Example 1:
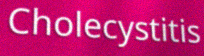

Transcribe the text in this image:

Cholecystitis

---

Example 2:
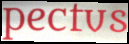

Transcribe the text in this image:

pectus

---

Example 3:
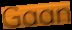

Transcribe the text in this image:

Gaan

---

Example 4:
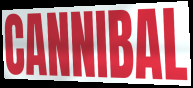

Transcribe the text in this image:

CANNIBAL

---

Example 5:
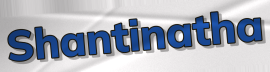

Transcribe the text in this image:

Shantinatha